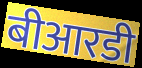
बीआरडी